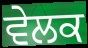
ਵੇਲਕ